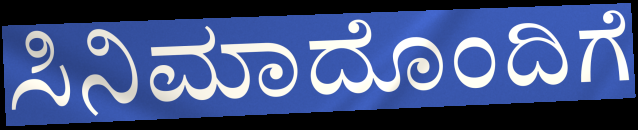
ಸಿನಿಮಾದೊಂದಿಗೆ